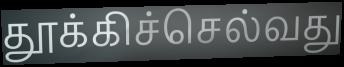
தூக்கிச்செல்வது